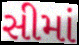
સીમાં